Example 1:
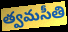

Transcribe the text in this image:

త్వమసీతి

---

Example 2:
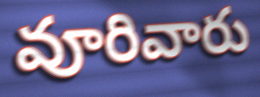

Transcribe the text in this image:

వూరివారు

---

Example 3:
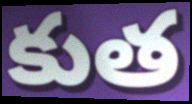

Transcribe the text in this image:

కుత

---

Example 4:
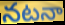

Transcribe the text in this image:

నటనా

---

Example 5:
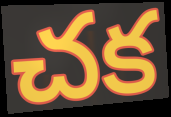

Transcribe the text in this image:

చక